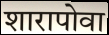
शारापोवा